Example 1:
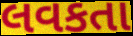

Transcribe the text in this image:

લવકતા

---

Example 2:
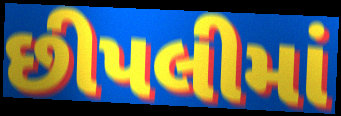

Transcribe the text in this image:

છીપલીમાં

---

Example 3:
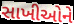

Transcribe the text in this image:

સાખીઓને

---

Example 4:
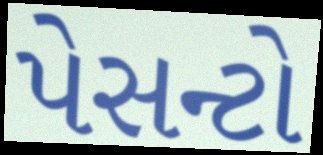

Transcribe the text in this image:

પેસન્ટો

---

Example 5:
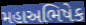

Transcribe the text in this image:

મહાઅભિષેક